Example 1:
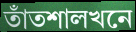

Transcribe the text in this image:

তাঁতশালখনে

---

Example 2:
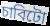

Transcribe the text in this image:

চাবিটো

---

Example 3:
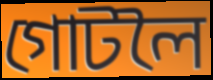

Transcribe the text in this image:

গোটলৈ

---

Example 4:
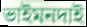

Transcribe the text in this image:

ভাইমনদাই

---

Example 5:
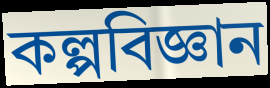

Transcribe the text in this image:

কল্পবিজ্ঞান